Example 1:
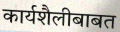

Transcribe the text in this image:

कार्यशैलीबाबत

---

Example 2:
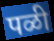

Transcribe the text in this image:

पळी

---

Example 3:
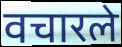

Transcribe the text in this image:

वचारले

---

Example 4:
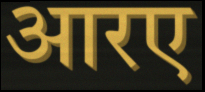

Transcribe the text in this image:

आरए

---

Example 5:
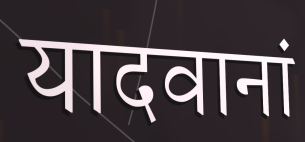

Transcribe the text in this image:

यादवानां